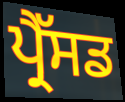
ਪ੍ਰੈੱਸਡ